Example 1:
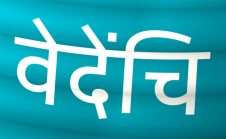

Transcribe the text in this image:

वेदेंचि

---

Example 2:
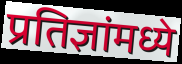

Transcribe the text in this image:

प्रतिज्ञांमध्ये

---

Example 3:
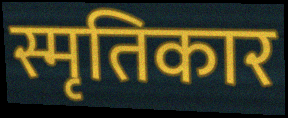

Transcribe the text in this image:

स्मृतिकार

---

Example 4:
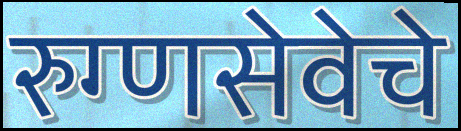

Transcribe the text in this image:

रुग्णसेवेचे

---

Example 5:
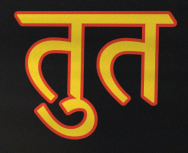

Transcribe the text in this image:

तुत